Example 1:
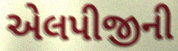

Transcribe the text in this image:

એલપીજીની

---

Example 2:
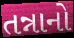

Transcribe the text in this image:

તન્નાનો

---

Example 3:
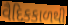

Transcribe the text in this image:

વૈદિકકાળથી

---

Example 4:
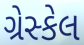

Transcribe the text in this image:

ગ્રેસ્કેલ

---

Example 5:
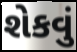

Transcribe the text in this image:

શેકવું